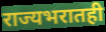
राज्यभरातही